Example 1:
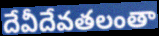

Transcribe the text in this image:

దేవీదేవతలంతా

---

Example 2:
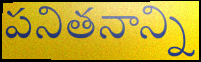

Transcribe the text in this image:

పనితనాన్ని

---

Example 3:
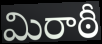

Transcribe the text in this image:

మిరాఠీ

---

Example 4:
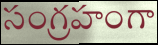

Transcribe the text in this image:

సంగ్రహంగా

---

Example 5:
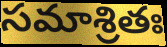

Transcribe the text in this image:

సమాశ్రితః